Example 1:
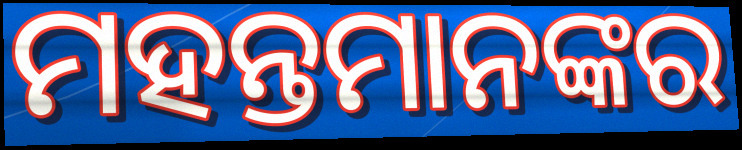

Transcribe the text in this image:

ମହନ୍ତମାନଙ୍କର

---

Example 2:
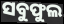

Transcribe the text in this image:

ସବୁଫୁଲ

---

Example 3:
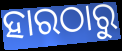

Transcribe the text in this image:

ହାରଠାରୁ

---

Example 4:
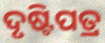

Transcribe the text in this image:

ଦୃଷ୍ଟିପତ୍ର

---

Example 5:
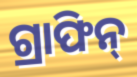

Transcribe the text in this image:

ଗ୍ରାଫିନ୍